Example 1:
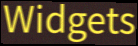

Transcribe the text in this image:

Widgets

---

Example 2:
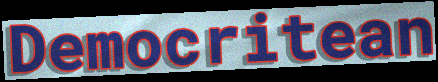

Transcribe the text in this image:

Democritean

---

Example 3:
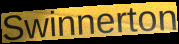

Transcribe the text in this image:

Swinnerton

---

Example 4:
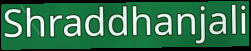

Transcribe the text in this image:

Shraddhanjali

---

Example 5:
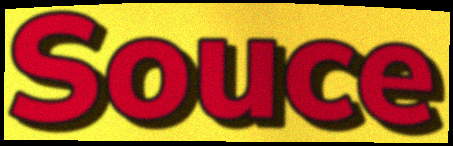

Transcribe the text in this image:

Souce